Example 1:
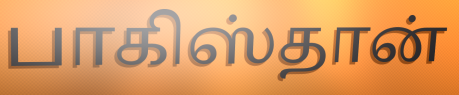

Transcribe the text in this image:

பாகிஸ்தான்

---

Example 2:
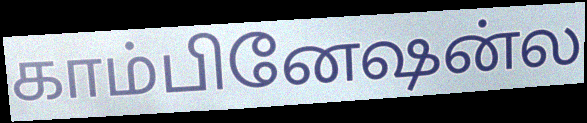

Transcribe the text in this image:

காம்பினேஷன்ல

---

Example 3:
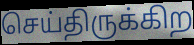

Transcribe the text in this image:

செய்திருக்கிற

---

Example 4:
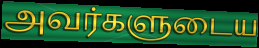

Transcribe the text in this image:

அவர்களுடைய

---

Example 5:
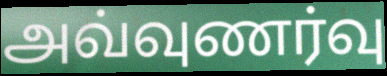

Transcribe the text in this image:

அவ்வுணர்வு